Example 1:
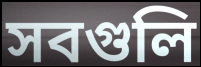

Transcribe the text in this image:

সবগুলি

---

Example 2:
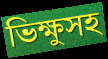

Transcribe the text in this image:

ভিক্ষুসহ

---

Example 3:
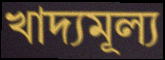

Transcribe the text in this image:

খাদ্যমূল্য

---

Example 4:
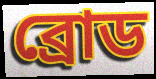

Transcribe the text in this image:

ব্রোড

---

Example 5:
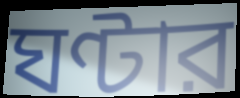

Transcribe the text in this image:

ঘণ্টার